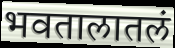
भवतालातलं